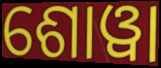
ଶୋୱା